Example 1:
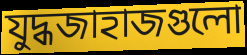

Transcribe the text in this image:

যুদ্ধজাহাজগুলো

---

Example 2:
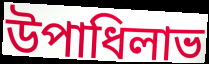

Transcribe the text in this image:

উপাধিলাভ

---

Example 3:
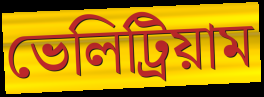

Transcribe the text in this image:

ভেলিট্রিয়াম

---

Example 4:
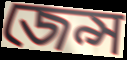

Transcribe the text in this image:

জেন্স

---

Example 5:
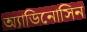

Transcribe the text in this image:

অ্যাডিনোসিন